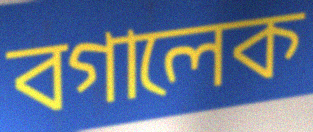
বগালেক